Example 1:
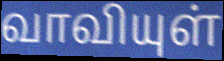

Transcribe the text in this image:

வாவியுள்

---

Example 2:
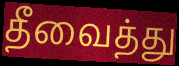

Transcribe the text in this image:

தீவைத்து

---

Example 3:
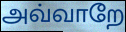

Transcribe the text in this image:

அவ்வாறே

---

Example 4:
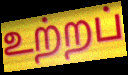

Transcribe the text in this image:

உற்றப்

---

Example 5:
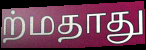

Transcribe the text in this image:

ற்மதாது